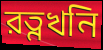
রত্নখনি